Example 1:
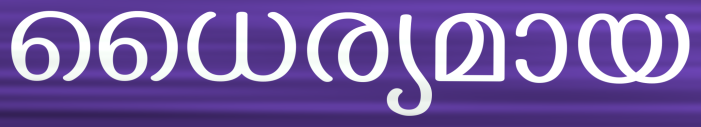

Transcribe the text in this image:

ധൈര്യമായ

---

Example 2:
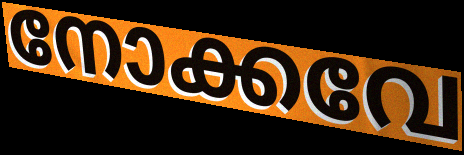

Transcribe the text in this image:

നോക്കവേ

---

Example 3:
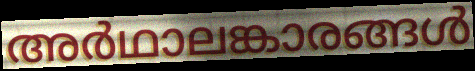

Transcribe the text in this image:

അർഥാലങ്കാരങ്ങൾ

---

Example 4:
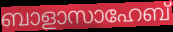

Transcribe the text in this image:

ബാളാസാഹേബ്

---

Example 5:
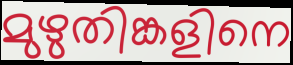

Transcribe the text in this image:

മുഴുതിങ്കളിനെ